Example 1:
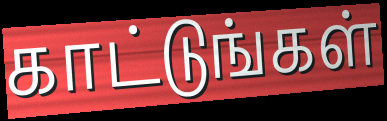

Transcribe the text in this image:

காட்டுங்கள்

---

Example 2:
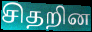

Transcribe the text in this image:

சிதறின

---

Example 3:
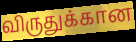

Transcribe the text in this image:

விருதுக்கான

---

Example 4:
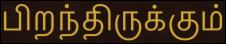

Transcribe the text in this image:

பிறந்திருக்கும்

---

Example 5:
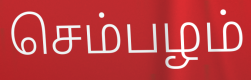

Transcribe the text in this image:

செம்பழம்